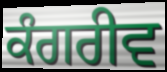
ਕੰਗਰੀਵ